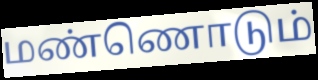
மண்ணொடும்